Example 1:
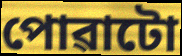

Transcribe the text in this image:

পোৱাটো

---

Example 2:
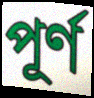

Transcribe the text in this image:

পূৰ্ণ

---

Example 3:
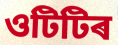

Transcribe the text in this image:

ওটিটিৰ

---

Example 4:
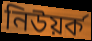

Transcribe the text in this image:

নিউয়ৰ্ক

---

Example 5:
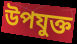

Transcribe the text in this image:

উপযুক্ত